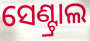
ସେଣ୍ଟ୍ରାଲ